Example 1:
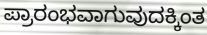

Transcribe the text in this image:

ಪ್ರಾರಂಭವಾಗುವುದಕ್ಕಿಂತ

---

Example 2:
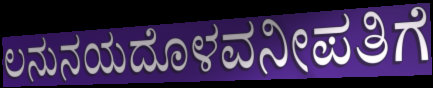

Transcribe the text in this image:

ಲನುನಯದೊಳವನೀಪತಿಗೆ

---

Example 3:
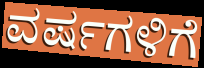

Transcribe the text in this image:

ವರ್ಷಗಳಿಗೆ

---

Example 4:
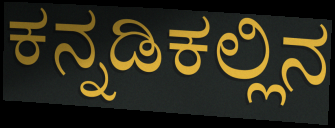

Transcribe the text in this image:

ಕನ್ನಡಿಕಲ್ಲಿನ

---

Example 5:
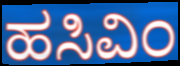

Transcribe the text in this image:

ಹಸಿವಿಂ